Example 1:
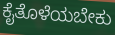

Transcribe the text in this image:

ಕೈತೊಳೆಯಬೇಕು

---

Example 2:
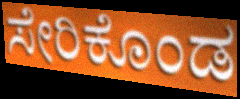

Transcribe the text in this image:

ಸೇರಿಕೊಂಡ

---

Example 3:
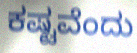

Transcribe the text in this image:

ಕಷ್ಟವೆಂದು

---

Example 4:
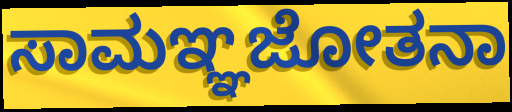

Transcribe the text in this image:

ಸಾಮಞ್ಞಜೋತನಾ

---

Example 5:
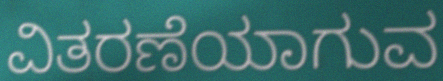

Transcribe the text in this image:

ವಿತರಣೆಯಾಗುವ